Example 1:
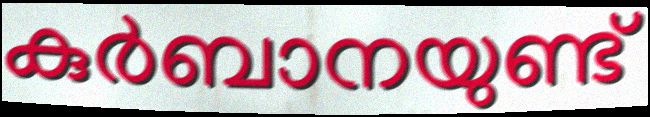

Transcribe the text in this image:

കുർബാനയുണ്ട്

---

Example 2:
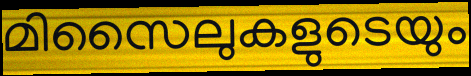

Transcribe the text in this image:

മിസൈലുകളുടെയും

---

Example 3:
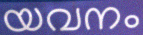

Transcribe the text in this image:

യവനം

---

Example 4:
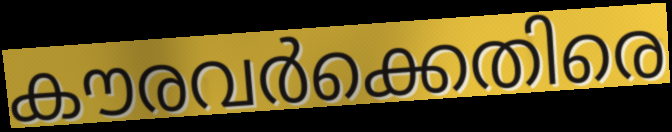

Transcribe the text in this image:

കൗരവർക്കെതിരെ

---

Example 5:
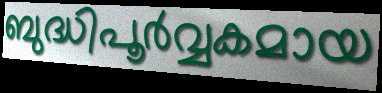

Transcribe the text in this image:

ബുദ്ധിപൂർവ്വകമായ